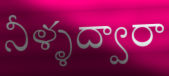
నీళ్ళద్వారా